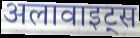
अलावाइट्स